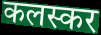
कलस्कर